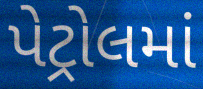
પેટ્રોલમાં